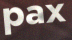
pax